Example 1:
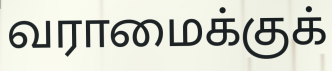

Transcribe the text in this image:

வராமைக்குக்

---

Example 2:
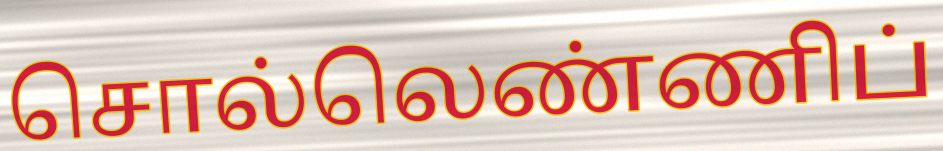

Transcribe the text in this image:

சொல்லெண்ணிப்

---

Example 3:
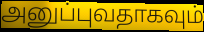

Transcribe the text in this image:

அனுப்புவதாகவும்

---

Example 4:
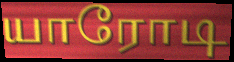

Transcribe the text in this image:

யாரோடி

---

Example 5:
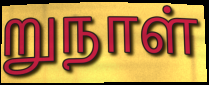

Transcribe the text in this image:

றுநாள்